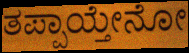
ತಪ್ಪಾಯ್ತೇನೋ